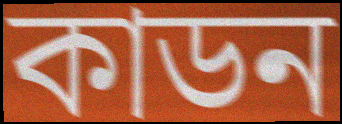
কাডন